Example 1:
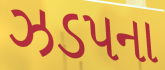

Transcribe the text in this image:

ઝડપના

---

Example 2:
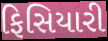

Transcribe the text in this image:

ફિસિયારી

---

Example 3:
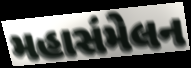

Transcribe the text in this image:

મહાસંમેલન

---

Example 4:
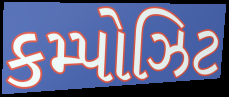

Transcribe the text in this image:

કમ્પોઝિટ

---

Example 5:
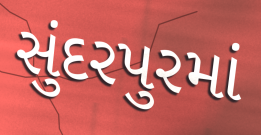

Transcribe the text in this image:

સુંદરપુરમાં